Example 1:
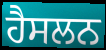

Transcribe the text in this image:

ਹੈਸਲਨ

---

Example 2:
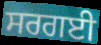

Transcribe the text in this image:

ਸਰਗਈ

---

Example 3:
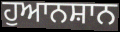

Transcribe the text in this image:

ਹੁਆਨਸ਼ਾਨ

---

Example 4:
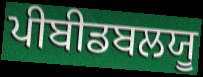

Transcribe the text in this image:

ਪੀਬੀਡਬਲਯੂ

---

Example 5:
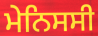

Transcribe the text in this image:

ਮੇਨਿਸਸੀ